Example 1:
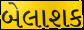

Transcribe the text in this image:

બેલાશક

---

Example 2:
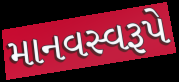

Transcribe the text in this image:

માનવસ્વરૂપે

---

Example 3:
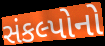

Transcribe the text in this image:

સંકલ્પોનો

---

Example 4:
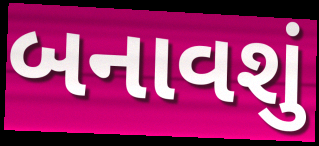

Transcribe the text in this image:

બનાવશું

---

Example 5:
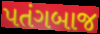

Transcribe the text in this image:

પતંગબાજ